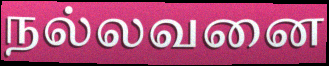
நல்லவனை